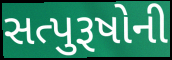
સત્પુરૂષોની